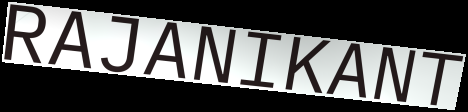
RAJANIKANT